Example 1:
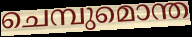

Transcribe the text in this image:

ചെമ്പുമൊന്ത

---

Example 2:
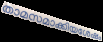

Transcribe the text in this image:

താമസമാക്കിയശേഷം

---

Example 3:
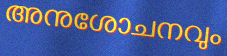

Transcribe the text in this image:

അനുശോചനവും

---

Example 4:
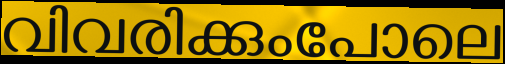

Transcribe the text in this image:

വിവരിക്കുംപോലെ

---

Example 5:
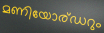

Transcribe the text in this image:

മണിയോര്ഡറും